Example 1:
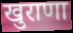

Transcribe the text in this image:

खुराणा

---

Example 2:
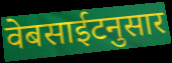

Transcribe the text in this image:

वेबसाईटनुसार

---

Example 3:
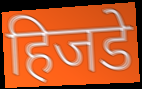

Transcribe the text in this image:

हिजडे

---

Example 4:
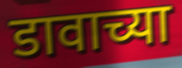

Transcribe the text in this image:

डावाच्या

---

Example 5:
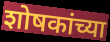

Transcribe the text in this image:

शोषकांच्या